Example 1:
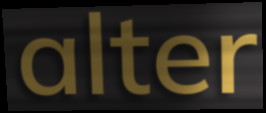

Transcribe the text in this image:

alter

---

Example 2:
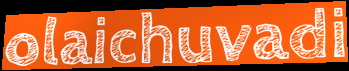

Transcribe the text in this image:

olaichuvadi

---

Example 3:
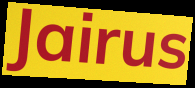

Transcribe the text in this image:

Jairus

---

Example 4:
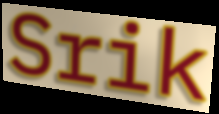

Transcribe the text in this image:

Srik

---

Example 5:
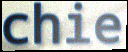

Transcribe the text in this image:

chie